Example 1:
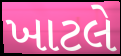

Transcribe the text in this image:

ખાટલે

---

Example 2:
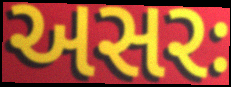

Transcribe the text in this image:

અસરઃ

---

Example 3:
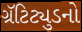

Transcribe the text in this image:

ગ્રૅટિટ્યુડનો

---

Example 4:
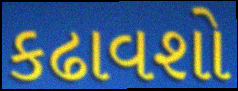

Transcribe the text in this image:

કઢાવશો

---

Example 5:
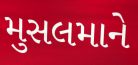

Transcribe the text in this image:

મુસલમાને